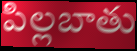
పిల్లబాతు